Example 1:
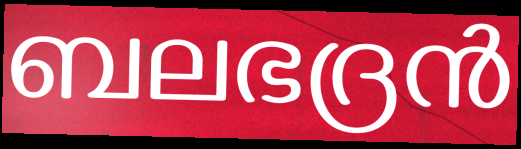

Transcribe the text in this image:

ബലഭദ്രൻ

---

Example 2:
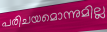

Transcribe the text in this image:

പരിചയമൊന്നുമില്ല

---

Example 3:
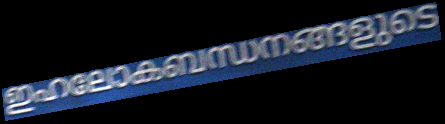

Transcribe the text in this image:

ഇഹലോകബന്ധനങ്ങളുടെ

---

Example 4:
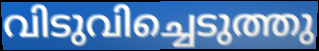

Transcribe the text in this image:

വിടുവിച്ചെടുത്തു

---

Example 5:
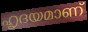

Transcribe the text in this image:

ഹൃദയമാണ്